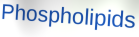
Phospholipids